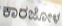
ಕಾರಜೋಳ